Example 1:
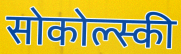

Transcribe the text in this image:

सोकोल्स्की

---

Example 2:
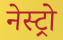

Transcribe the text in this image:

नेस्ट्रो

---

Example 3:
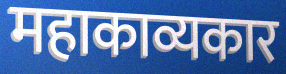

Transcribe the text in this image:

महाकाव्यकार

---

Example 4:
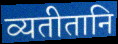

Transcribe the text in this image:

व्यतीतानि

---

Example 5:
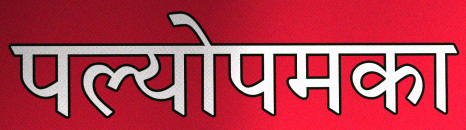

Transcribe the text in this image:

पल्योपमका